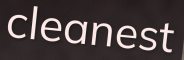
cleanest